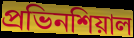
প্রভিনশিয়াল